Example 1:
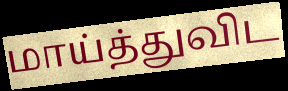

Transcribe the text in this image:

மாய்த்துவிட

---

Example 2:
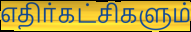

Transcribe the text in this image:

எதிர்கட்சிகளும்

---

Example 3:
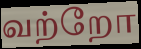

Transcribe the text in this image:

வற்றோ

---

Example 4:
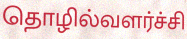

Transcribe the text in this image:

தொழில்வளர்ச்சி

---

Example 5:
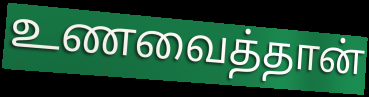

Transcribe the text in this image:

உணவைத்தான்